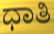
ಧಾತಿ